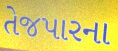
તેજપારના